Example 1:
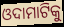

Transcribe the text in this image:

ଓଦାମାଟିକୁ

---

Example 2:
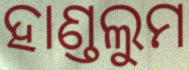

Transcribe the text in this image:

ହାଣ୍ଡଲୁମ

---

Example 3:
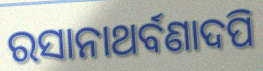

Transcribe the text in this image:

ରସାନାଥର୍ବଣାଦପି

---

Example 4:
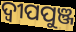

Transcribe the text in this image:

ଦ୍ଵୀପପୁଞ୍ଜ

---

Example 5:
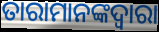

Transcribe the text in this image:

ତାରାମାନଙ୍କଦ୍ୱାରା